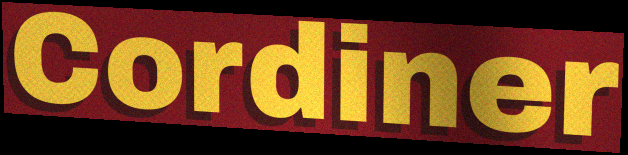
Cordiner